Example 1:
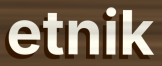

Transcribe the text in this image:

etnik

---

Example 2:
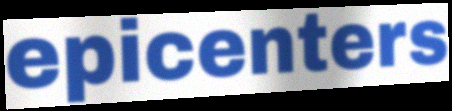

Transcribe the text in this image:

epicenters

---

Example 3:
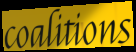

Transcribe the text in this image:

coalitions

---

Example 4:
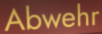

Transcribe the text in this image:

Abwehr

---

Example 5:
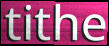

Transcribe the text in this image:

tithe